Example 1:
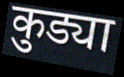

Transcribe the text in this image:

कुड्या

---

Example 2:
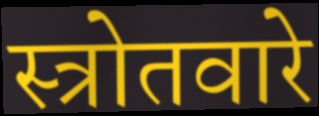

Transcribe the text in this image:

स्त्रोतवारे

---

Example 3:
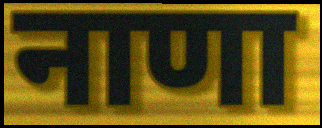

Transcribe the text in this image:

नाणा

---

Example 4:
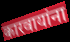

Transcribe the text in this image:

कारवायांना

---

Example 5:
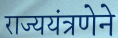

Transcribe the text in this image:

राज्ययंत्रणेने